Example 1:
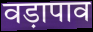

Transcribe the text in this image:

वड़ापाव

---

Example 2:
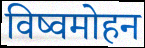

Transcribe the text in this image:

विष्वमोहन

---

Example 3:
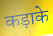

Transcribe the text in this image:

कड़ाके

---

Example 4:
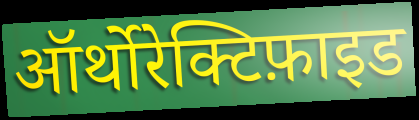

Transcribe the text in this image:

ऑर्थोरेक्टिफ़ाइड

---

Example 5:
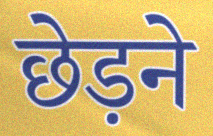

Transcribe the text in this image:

छेड़ने